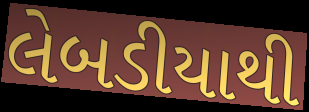
લેબડીયાથી